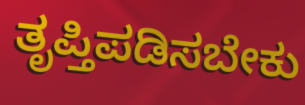
ತೃಪ್ತಿಪಡಿಸಬೇಕು